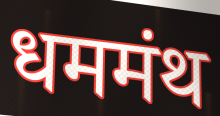
धममंथ